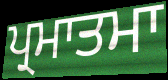
ਪ੍ਰਮਾਤਮਾ